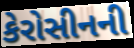
કેરોસીનની